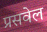
प्रसवेल